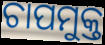
ଚାପମୁକ୍ତ